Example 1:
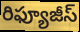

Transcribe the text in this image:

రిఫ్యూజీస్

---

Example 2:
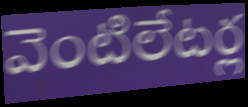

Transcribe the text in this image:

వెంటిలేటర్ల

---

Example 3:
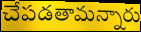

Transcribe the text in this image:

చేపడతామన్నారు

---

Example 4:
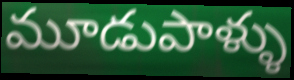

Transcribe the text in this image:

మూడుపాళ్ళు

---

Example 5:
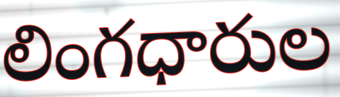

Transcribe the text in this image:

లింగధారుల